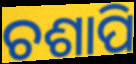
ଚଶାପି